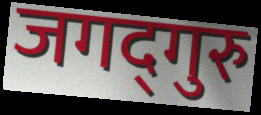
जगद्‍गुरु